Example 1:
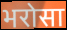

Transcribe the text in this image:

भरोसा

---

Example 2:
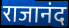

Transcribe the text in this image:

राजानंद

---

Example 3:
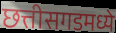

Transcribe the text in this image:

छत्तीसगडमध्ये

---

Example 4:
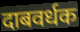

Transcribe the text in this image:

दाबवर्धक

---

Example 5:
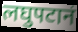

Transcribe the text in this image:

लघुपटानं